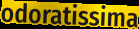
odoratissima